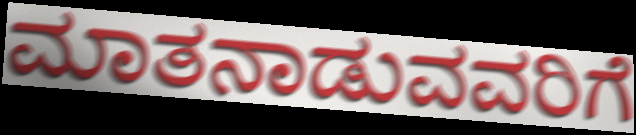
ಮಾತನಾಡುವವರಿಗೆ